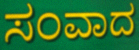
ಸಂವಾದ